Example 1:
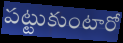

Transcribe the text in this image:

పట్టుకుంటారో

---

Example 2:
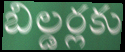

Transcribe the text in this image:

బిల్డర్లకు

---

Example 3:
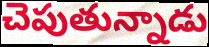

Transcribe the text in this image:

చెపుతున్నాడు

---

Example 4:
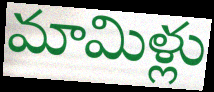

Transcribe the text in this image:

మామిళ్లు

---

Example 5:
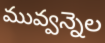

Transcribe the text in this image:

మువ్వన్నెల